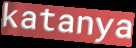
katanya